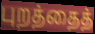
புறத்தைத்